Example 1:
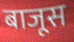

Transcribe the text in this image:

बाजूस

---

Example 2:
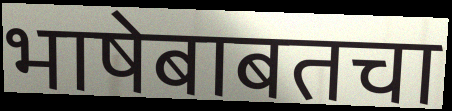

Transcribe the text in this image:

भाषेबाबतचा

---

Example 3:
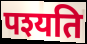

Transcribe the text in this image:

पश्यति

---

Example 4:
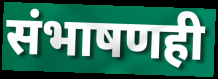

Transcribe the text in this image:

संभाषणही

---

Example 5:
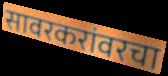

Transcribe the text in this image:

सावरकरांवरचा